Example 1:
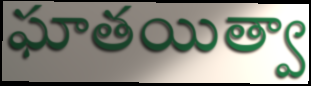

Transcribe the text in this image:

ఘాతయిత్వా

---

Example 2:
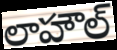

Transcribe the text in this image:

లాహౌల్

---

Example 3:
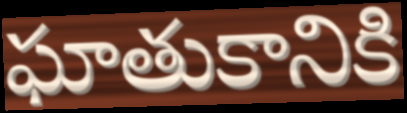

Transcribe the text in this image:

ఘాతుకానికి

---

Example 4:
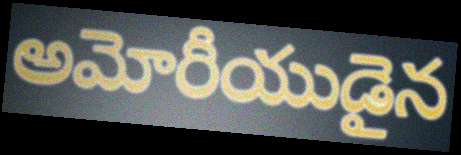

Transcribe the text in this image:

అమోరీయుడైన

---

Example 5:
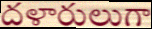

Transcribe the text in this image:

దళారులుగా